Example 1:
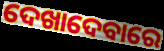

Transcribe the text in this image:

ଦେଖାଦେବାରେ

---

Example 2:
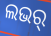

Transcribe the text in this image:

ଲଭର୍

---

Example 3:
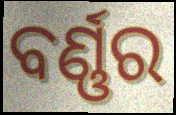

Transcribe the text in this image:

ବର୍ଣ୍ଣର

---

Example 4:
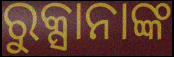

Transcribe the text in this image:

ରୁକ୍ସାନାଙ୍କ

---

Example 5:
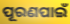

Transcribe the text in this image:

ପୂରଣପାଇଁ